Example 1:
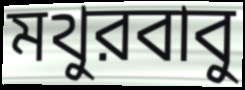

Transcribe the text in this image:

মথুরবাবু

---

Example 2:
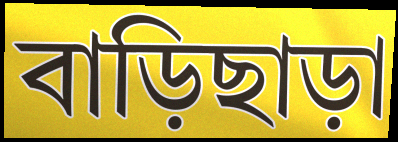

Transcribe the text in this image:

বাড়িছাড়া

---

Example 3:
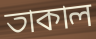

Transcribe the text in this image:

তাকাল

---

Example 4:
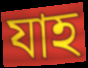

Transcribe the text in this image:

যাহ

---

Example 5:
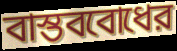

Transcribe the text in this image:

বাস্তববোধের